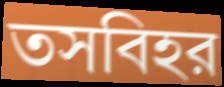
তসবিহর